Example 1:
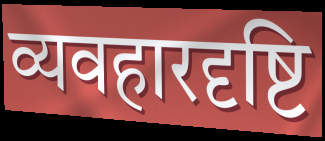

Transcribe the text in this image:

व्यवहारदृष्टि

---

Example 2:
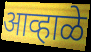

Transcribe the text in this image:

आव्हाळे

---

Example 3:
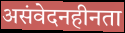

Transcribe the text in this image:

असंवेदनहीनता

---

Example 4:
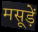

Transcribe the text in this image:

मसूड़ें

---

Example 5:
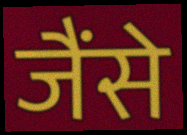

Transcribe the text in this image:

जैंसे